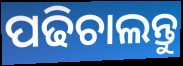
ପଢିଚାଲନ୍ତୁ